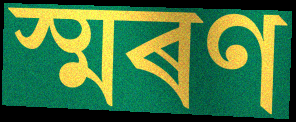
স্মৰণ